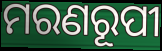
ମରଣରୂପୀ